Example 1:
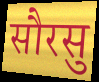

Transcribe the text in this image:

सौरसु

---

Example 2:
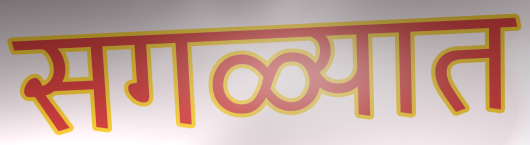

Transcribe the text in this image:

सगळ्यात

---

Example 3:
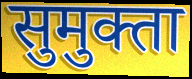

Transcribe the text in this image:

सुमुक्ता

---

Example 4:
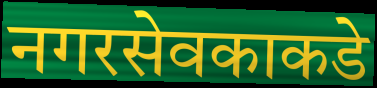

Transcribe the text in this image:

नगरसेवकाकडे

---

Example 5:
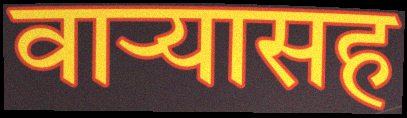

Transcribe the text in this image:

वार्‍यासह